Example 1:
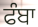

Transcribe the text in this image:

ਫੰਬਾ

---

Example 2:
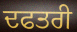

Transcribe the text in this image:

ਦਫਤਰੀ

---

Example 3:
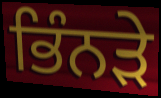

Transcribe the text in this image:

ਭਿੰਨੜੇ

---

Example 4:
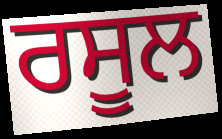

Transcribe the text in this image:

ਰਸੂਲ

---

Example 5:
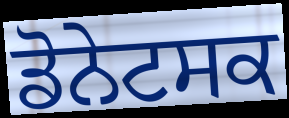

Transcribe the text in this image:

ਡੋਨੇਟਸਕ